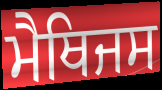
ਮੈਥਿਜਸ